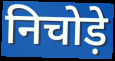
निचोड़े